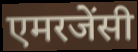
एमरजेंसी